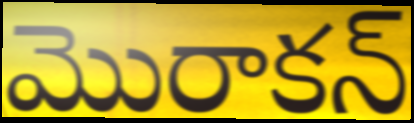
మొరాకన్